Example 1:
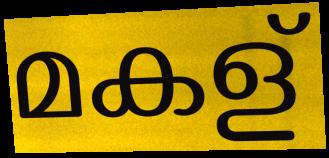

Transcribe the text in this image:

മകള്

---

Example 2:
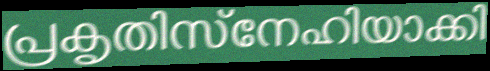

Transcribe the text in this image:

പ്രകൃതിസ്‌നേഹിയാക്കി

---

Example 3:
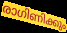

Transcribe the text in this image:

രാഗിണിക്കും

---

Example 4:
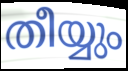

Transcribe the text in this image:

തീയ്യും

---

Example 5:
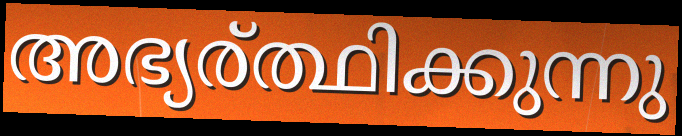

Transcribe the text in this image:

അഭ്യര്ത്ഥിക്കുന്നു